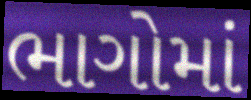
ભાગોમાં